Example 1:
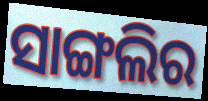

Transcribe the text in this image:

ସାଙ୍ଗଲିର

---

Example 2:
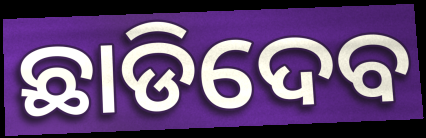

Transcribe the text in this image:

ଛାଡିଦେବ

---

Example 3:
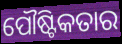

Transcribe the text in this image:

ପୌଷ୍ଟିକତାର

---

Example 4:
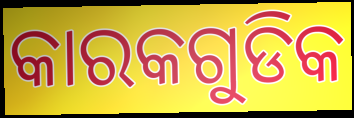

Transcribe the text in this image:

କାରକଗୁଡିକ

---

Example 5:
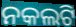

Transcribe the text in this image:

ନକଲଟି